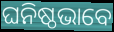
ଘନିଷ୍ଠଭାବେ